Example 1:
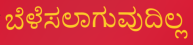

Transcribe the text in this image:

ಬೆಳೆಸಲಾಗುವುದಿಲ್ಲ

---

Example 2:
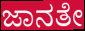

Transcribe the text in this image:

ಜಾನತೇ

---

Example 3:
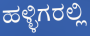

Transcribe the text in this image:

ಹಳ್ಳಿಗರಲ್ಲಿ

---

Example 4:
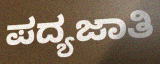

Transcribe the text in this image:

ಪದ್ಯಜಾತಿ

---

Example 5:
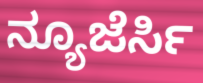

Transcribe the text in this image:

ನ್ಯೂಜೆರ್ಸಿ